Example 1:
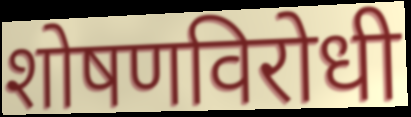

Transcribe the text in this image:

शोषणविरोधी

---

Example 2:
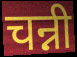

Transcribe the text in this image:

चन्नी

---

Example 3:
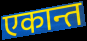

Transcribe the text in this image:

एकान्त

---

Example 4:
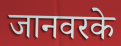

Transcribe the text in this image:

जानवरके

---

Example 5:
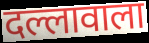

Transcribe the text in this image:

दल्लावाला